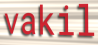
vakil